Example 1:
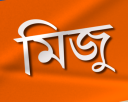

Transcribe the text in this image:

মিজু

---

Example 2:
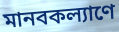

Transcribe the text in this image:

মানবকল্যাণে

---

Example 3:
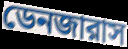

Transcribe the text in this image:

ডেনজারাস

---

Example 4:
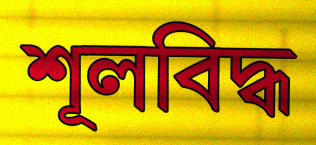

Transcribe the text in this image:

শূলবিদ্ধ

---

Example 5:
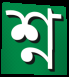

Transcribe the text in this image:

শ্ন